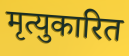
मृत्युकारित